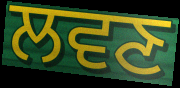
ਲਵਣ